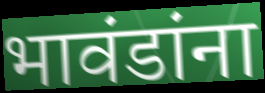
भावंडांना